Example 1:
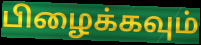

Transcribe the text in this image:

பிழைக்கவும்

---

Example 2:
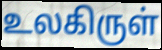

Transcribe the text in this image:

உலகிருள்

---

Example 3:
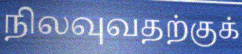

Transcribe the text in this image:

நிலவுவதற்குக்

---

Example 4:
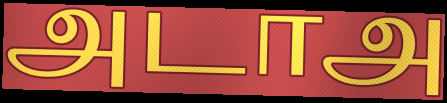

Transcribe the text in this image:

அடாஅ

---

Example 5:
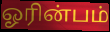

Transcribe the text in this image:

ஓரின்பம்